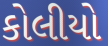
કોલીયો